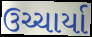
ઉચ્ચાર્યા